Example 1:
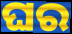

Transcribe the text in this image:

ଘର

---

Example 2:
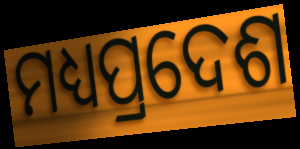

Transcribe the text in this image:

ମଧ୍ୟପ୍ରଦେଶ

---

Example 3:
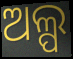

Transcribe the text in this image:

ଅଲ୍ପ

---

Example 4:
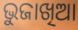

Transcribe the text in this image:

ଭୁଜାଖିଆ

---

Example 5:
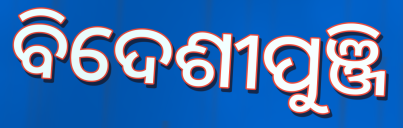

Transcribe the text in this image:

ବିଦେଶୀପୁଞ୍ଜି